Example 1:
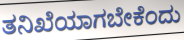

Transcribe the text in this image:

ತನಿಖೆಯಾಗಬೇಕೆಂದು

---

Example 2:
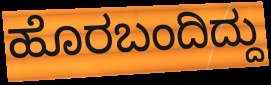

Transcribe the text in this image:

ಹೊರಬಂದಿದ್ದು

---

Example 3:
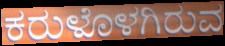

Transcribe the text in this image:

ಕರುಳೊಳಗಿರುವ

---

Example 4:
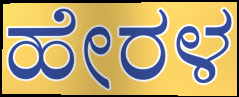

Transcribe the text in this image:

ಹೇರಳ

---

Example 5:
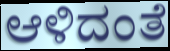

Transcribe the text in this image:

ಆಳಿದಂತೆ